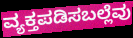
ವ್ಯಕ್ತಪಡಿಸಬಲ್ಲೆವು